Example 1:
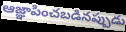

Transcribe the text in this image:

ఆజ్ఞాపించబడినప్పుడు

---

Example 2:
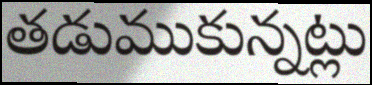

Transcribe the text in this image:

తడుముకున్నట్లు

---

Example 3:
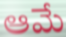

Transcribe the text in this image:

ఆమే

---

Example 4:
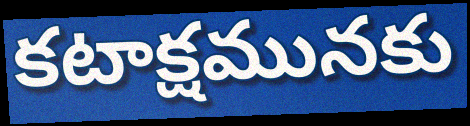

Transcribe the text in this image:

కటాక్షమునకు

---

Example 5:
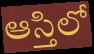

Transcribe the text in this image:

ఆస్తిలో